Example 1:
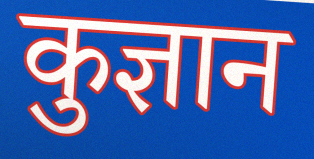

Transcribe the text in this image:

कुज्ञान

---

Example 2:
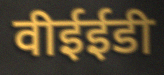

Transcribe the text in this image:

वीईईडी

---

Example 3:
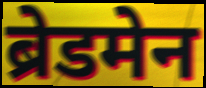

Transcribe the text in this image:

ब्रेडमेन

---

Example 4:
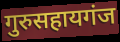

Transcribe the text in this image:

गुरुसहायगंज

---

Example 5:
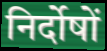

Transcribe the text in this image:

निर्दोषों